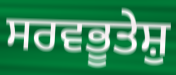
ਸਰਵਭੂਤੇਸ਼ੁ